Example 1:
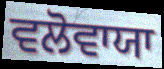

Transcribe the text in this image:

ਵਲੋਵਾਯਾ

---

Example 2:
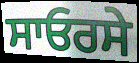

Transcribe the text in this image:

ਸਾਓਰਸੇ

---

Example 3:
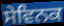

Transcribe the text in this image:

ਸੇਵਿਨਕ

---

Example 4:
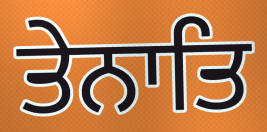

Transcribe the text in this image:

ਤੇਨਾਤਿ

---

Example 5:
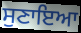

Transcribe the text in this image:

ਸੁਣਾਇਆ